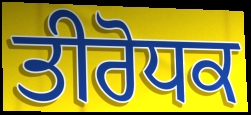
ਤੀਰੋਧਕ